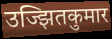
उज्झितकुमार